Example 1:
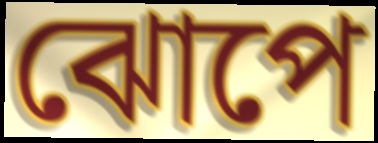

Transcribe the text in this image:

ঝোপে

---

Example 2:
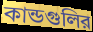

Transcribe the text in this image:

কান্ডগুলির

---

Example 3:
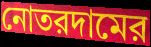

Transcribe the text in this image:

নোতরদামের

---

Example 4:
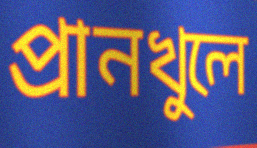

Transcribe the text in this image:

প্রানখুলে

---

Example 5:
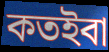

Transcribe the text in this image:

কতইবা